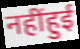
नहींहुई